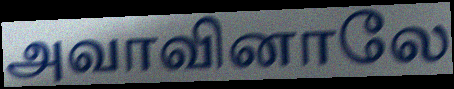
அவாவினாலே